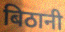
बिठानी